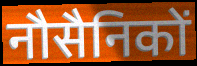
नौसैनिकों